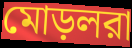
মোড়লরা